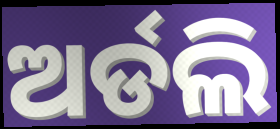
ଅର୍ଡଲି